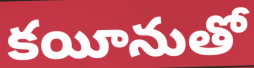
కయీనుతో